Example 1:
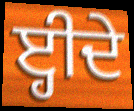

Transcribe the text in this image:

ੲ੍ਹੀਦੇ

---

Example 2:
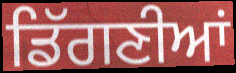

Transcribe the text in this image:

ਡਿੱਗਣੀਆਂ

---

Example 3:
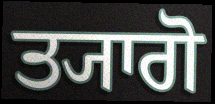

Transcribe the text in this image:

ਤ੍ਯਾਗੋ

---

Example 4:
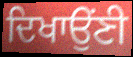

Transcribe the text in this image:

ਦਿਖਾਉਂਣੀ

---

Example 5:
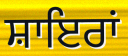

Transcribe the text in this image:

ਸ਼ਾਇਰਾਂ